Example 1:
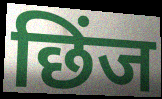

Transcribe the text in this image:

छिंज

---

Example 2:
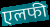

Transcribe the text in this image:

एलफी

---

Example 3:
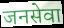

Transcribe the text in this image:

जनसेवा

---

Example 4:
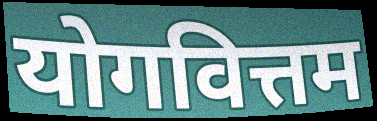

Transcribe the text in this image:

योगवित्तम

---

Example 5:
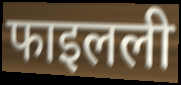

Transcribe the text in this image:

फाइलली